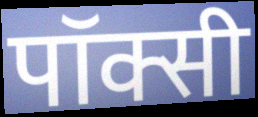
पॉक्सी